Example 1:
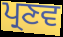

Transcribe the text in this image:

ਪ੍ਰਣਵ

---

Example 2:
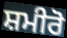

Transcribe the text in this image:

ਸ਼ਮੀਰੋ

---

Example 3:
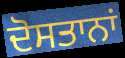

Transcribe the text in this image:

ਦੋਸਤਾਨਾਂ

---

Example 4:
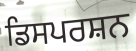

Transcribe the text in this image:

ਡਿਸਪਰਸ਼ਨ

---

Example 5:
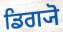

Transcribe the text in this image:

ਡਿਗ੍ਯੋ